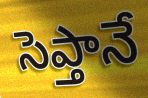
సెప్తానే